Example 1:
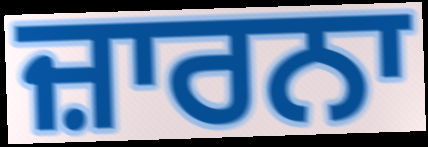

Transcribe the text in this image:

ਜ਼ਾਰਨਾ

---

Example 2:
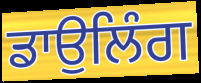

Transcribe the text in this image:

ਡਾਉਲਿੰਗ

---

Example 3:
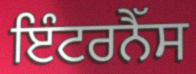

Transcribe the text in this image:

ਇੰਟਰਨੈੱਸ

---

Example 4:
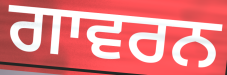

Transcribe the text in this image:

ਗਾਵਰਨ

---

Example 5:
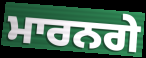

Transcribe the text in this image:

ਮਾਰਨਗੇ